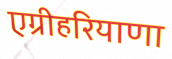
एग्रीहरियाणा